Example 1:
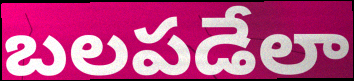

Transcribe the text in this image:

బలపడేలా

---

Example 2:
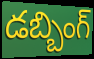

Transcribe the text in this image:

డబ్బింగ్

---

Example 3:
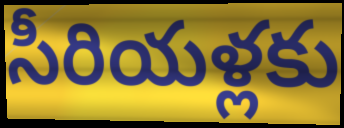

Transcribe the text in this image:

సీరియళ్లకు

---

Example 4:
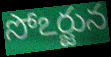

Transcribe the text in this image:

సోఽర్జున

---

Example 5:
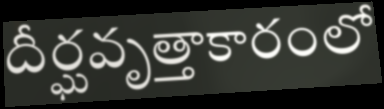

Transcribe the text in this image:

దీర్ఘవృత్తాకారంలో